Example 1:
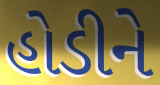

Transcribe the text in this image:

હોડીને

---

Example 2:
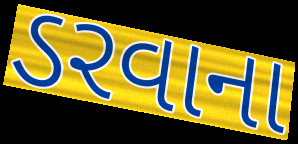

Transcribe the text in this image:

ડરવાના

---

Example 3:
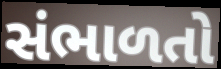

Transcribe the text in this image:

સંભાળતો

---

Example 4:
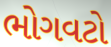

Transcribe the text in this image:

ભોગવટો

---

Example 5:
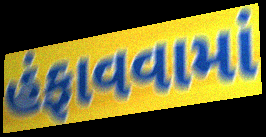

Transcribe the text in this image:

હંફાવવામાં